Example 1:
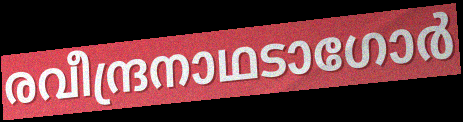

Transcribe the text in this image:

രവീന്ദ്രനാഥടാഗോർ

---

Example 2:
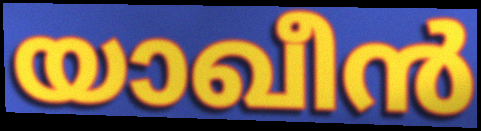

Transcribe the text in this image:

യാഖീൻ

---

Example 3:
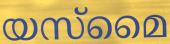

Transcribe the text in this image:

യസ്മൈ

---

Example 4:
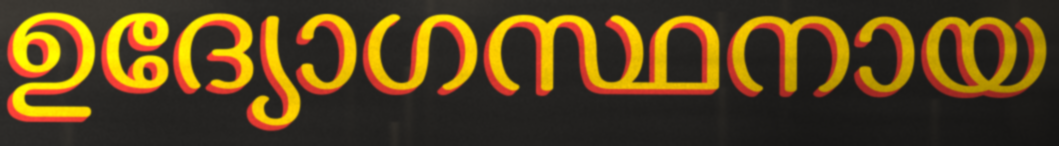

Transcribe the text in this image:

ഉദ്യോഗസ്ഥനായ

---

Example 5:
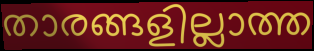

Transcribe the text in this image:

താരങ്ങളില്ലാത്ത